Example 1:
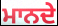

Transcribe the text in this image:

ਮਾਨਦੇ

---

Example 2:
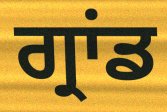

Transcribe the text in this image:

ਗ੍ਰਾਂਡ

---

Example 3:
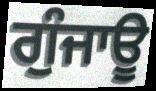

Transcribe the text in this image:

ਗੁੰਜਾਊ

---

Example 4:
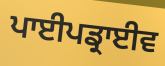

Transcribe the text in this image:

ਪਾਈਪਡ੍ਰਾਈਵ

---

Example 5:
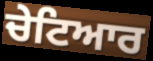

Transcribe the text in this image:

ਚੇਟਿਆਰ